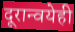
दूरान्वयेही